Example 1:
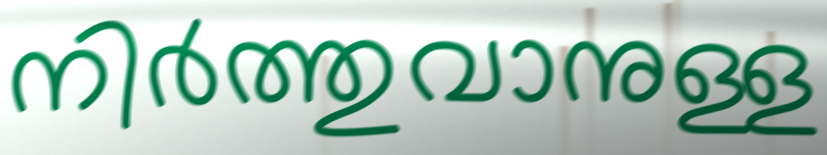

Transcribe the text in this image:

നിർത്തുവാനുള്ള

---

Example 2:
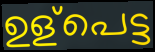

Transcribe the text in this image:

ഉള്പെട്ട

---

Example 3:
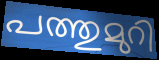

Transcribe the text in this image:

പത്തുമുറി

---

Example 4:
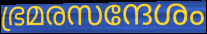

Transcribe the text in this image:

ഭ്രമരസന്ദേശം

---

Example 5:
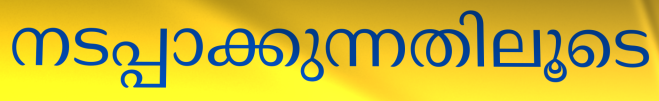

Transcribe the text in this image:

നടപ്പാക്കുന്നതിലൂടെ